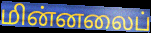
மின்னலைப்